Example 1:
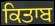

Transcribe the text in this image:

ਕਿਤਾਬ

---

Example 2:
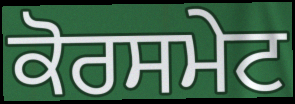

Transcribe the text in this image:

ਕੋਰਸਮੇਟ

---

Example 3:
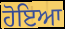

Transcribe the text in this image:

ਹੋਇਆ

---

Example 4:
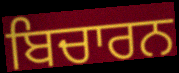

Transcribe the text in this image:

ਬਿਚਾਰਨ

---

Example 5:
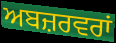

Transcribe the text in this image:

ਅਬਜ਼ਰਵਰਾਂ